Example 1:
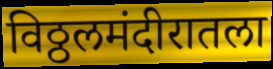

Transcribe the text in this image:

विठ्ठलमंदीरातला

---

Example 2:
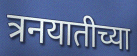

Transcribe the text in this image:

त्रनयातीच्या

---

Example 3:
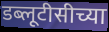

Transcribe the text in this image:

डब्लूटीसीच्या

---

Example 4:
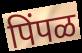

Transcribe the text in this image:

पिंपळ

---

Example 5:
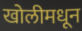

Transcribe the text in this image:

खोलीमधून